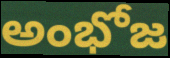
అంభోజ